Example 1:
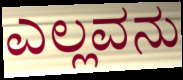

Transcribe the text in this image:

ಎಲ್ಲವನು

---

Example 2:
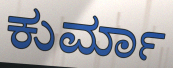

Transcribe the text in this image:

ಕುರ್ಮಾ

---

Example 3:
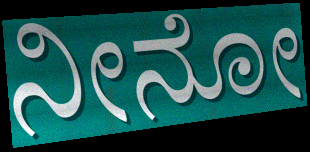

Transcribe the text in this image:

ನೀನೋ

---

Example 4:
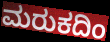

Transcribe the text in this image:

ಮರುಕದಿಂ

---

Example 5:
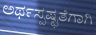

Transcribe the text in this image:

ಅರ್ಥಸ್ಪಷ್ಟತೆಗಾಗಿ